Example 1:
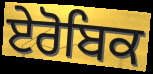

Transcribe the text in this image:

ਏਰੋਬਿਕ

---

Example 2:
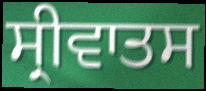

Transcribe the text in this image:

ਸ੍ਰੀਵਾਤਸ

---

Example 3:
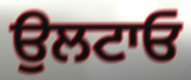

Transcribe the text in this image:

ਉਲਟਾਓ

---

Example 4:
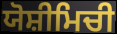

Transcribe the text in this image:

ਯੋਸ਼ੀਮਿਚੀ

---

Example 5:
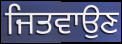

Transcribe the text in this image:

ਜਿਤਵਾਉਣ